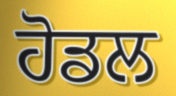
ਹੋਡਲ